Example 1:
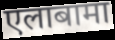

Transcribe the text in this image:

एलाबामा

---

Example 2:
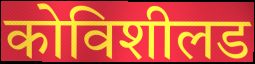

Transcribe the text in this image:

कोविशीलड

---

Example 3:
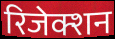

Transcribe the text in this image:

रिजेक्शन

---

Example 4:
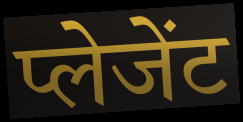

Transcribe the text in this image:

प्लेजेंट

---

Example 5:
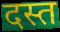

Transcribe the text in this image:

दस्त